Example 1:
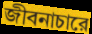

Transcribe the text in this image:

জীবনাচারে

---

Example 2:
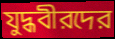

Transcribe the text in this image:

যুদ্ধবীরদের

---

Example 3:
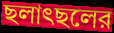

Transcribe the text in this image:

ছলাৎছলের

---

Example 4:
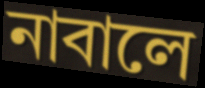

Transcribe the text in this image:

নাবালে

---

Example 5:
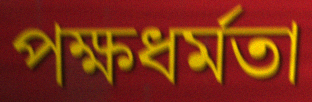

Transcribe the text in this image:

পক্ষধর্মতা